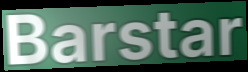
Barstar